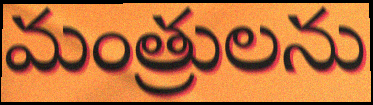
మంత్రులను